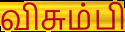
விசும்பி